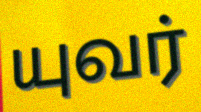
யுவர்